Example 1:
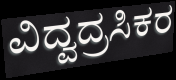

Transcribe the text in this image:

ವಿದ್ವದ್ರಸಿಕರ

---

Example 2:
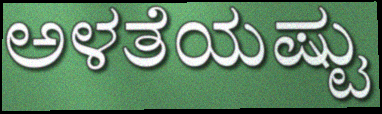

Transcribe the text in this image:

ಅಳತೆಯಷ್ಟು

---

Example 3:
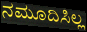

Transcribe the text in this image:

ನಮೂದಿಸಿಲ್ಲ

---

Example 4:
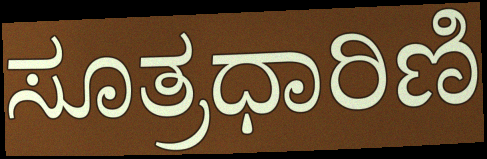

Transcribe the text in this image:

ಸೂತ್ರಧಾರಿಣಿ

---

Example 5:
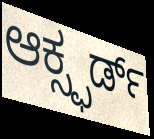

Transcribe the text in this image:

ಆಕ್ಸ್ಫರ್ಡ್